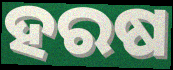
ହରଷ